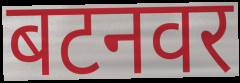
बटनवर